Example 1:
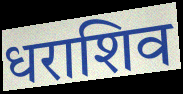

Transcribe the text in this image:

धराशिव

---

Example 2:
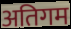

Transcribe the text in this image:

अतिगम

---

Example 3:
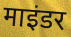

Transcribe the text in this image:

माइंडर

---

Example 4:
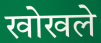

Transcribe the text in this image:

खोखले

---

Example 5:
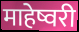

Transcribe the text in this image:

माहेष्वरी